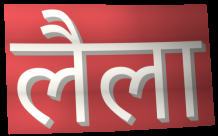
लैला